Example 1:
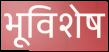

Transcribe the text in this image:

भूविशेष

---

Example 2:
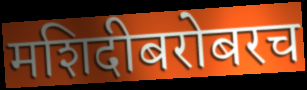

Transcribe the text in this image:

मशिदीबरोबरच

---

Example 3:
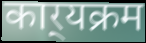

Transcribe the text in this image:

कार्यक्रम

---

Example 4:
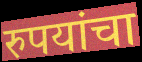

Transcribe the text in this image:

रुपयांचा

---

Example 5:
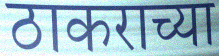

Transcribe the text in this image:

ठाकराच्या